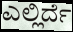
ಎಲ್ಲಿರ್ದೆ